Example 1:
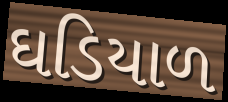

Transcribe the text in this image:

ઘડિયાળ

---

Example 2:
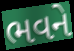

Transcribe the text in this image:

ભવને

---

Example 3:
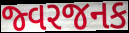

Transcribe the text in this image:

જ્વરજનક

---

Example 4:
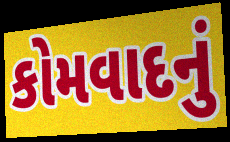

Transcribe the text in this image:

કોમવાદનું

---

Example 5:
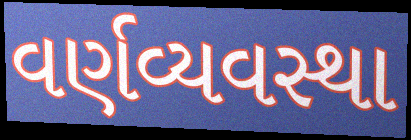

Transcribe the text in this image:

વર્ણવ્યવસ્થા